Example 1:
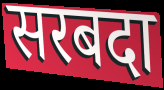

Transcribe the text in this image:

सरबदा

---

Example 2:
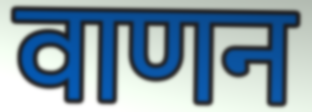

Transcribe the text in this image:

वाणन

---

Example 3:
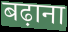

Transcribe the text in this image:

बढ़ाना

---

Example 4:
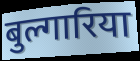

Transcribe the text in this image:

बुल्गारिया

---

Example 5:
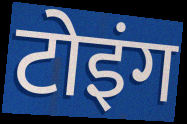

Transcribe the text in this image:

टोइंग